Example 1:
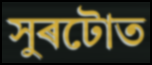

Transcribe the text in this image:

সুৰটোত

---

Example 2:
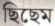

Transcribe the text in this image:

ছিছেম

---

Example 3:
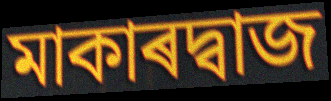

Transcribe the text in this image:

মাকাৰদ্বাজ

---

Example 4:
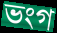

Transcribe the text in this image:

ভংগ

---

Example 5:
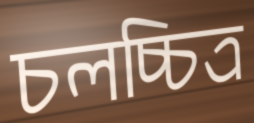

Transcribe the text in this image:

চলচ্চিত্ৰ